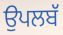
ਉਪਲਬੱ